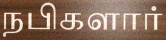
நபிகளார்